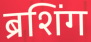
ब्रशिंग